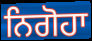
ਨਿਗੋਹਾ